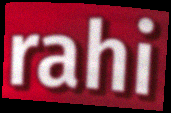
rahi